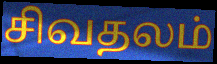
சிவதலம்